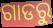
ଗାଡରୁ